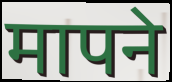
मापने